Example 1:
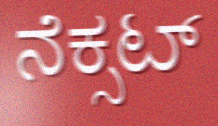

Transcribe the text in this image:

ನೆಕ್ಸಟ್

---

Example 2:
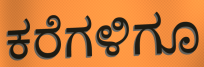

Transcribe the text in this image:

ಕರೆಗಳಿಗೂ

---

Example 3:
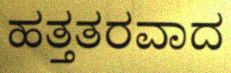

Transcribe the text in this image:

ಹತ್ತತರವಾದ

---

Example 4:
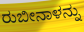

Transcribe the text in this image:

ರುಬೀನಾಳನ್ನು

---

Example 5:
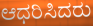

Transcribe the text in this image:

ಆಧರಿಸಿದರು